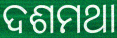
ଦଶମଥା